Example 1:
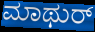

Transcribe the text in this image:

ಮಾಥುರ್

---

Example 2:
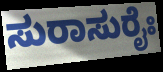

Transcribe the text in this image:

ಸುರಾಸುರೈಃ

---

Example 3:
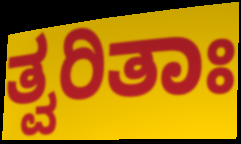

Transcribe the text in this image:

ತ್ವರಿತಾಃ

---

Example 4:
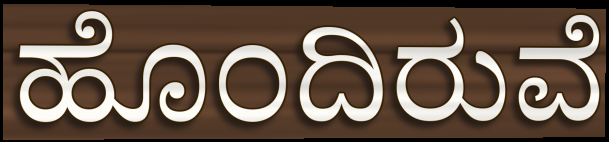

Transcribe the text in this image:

ಹೊಂದಿರುವೆ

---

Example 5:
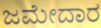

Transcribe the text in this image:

ಜಮೇದಾರ